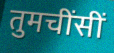
तुमचींसीं